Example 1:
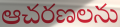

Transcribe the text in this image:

ఆచరణలను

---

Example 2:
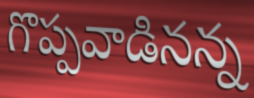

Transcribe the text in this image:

గొప్పవాడినన్న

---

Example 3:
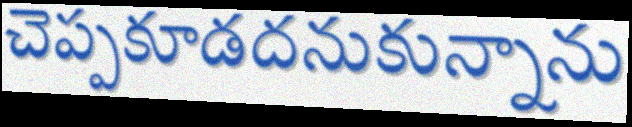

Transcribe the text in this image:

చెప్పకూడదనుకున్నాను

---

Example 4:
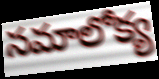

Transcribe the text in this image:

సమాలోక్య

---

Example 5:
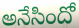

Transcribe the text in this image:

అనేసిందో